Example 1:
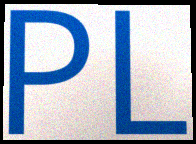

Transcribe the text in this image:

PL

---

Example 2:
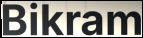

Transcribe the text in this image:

Bikram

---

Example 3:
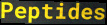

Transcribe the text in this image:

Peptides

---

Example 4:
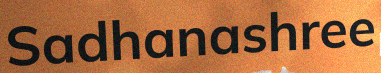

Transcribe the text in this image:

Sadhanashree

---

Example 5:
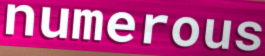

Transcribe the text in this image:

numerous